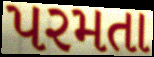
પરમતા